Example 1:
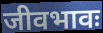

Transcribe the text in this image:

जीवभावः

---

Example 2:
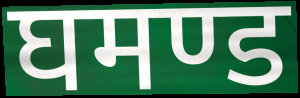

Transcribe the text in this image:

घमण्ड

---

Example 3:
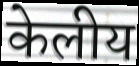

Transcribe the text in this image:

केलीय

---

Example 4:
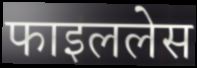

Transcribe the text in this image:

फाइललेस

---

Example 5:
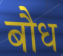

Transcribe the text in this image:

बौध